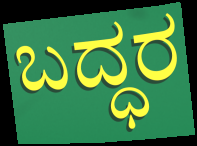
ಬದ್ಧರ